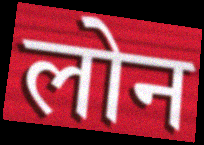
लोन